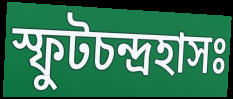
স্ফুটচন্দ্রহাসঃ